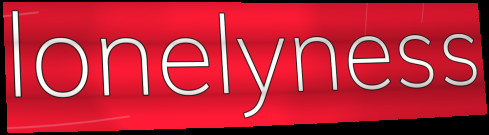
lonelyness